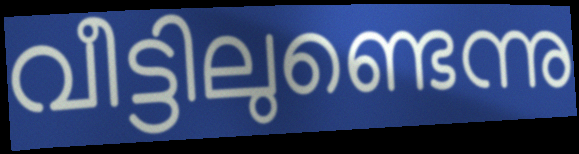
വീട്ടിലുണ്ടെന്നു